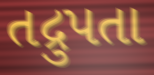
તદ્રુપતા